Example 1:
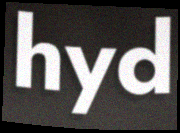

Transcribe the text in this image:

hyd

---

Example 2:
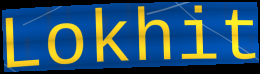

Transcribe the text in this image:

Lokhit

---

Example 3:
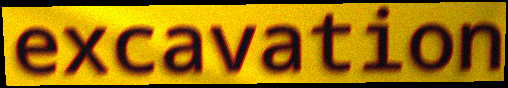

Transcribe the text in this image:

excavation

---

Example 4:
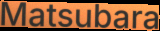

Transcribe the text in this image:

Matsubara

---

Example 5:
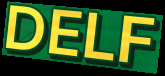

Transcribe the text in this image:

DELF